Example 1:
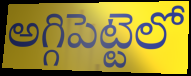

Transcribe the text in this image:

అగ్గిపెట్టెలో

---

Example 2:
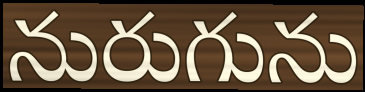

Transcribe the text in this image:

నురుగును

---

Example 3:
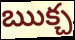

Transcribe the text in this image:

ఋక్చ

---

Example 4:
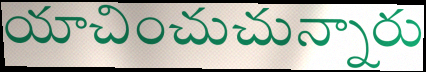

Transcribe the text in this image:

యాచించుచున్నారు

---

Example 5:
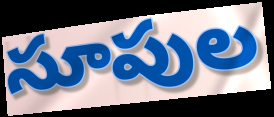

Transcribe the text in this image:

సూపుల